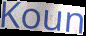
Koun